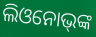
ଲିଓନୋଭ୍‌ଙ୍କ